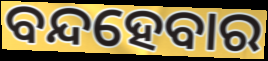
ବନ୍ଦହେବାର